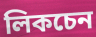
লিকচেন